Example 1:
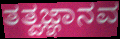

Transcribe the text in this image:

ತತ್ವಜ್ಞಾನವ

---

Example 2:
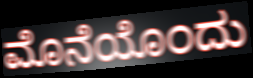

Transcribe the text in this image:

ಮೊನೆಯೊಂದು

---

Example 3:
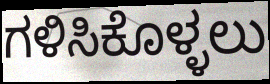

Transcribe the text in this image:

ಗಳಿಸಿಕೊಳ್ಳಲು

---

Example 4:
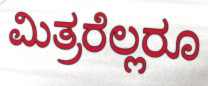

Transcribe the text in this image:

ಮಿತ್ರರೆಲ್ಲರೂ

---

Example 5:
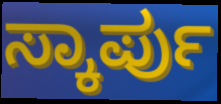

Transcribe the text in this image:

ಸ್ಕಾರ್ಪು